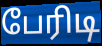
பேரிடி